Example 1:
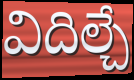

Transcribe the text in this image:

విదిల్చే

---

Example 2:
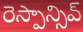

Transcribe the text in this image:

రెస్పాన్సివ్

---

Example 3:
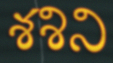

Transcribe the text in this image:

శశిని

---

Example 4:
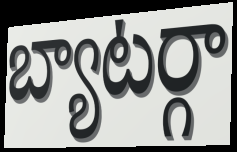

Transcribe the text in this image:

బ్యాటర్గా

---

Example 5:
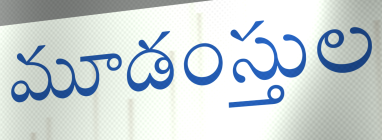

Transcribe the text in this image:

మూడంస్తుల